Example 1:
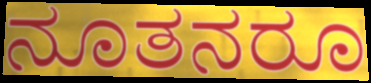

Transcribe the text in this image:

ನೂತನರೂ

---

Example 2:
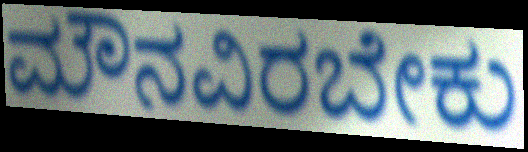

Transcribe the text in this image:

ಮೌನವಿರಬೇಕು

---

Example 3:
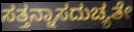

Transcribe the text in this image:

ಸತ್ತನ್ನಾಸದುಚ್ಯತೇ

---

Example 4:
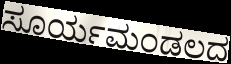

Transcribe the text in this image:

ಸೂರ್ಯಮಂಡಲದ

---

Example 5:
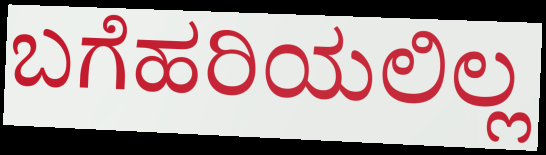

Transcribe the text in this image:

ಬಗೆಹರಿಯಲಿಲ್ಲ